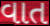
વાત